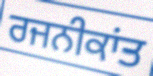
ਰਜਨੀਕਾਂਤ